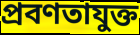
প্রবণতাযুক্ত